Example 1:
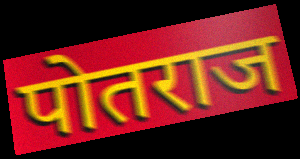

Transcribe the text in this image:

पोतराज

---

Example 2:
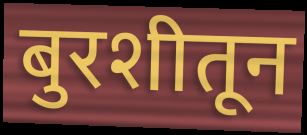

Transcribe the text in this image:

बुरशीतून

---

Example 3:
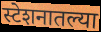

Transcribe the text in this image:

स्टेशनातल्या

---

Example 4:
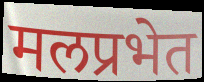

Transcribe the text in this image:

मलप्रभेत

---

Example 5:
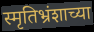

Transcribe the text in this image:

स्मृतिभ्रंशाच्या